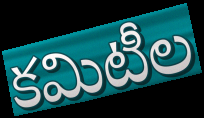
కమిటీల